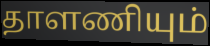
தாளணியும்